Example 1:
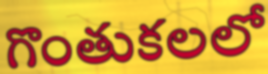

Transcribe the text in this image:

గొంతుకలలో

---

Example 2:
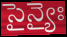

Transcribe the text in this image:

సైన్యైః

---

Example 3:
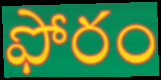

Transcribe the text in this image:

ఫోరం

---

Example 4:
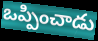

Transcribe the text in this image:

ఒప్పించాడు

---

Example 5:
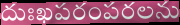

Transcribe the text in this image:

దుఃఖపరంపరలను